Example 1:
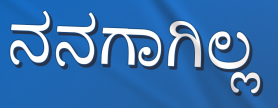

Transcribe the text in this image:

ನನಗಾಗಿಲ್ಲ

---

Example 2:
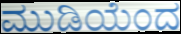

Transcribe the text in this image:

ಮುಡಿಯೆಂದ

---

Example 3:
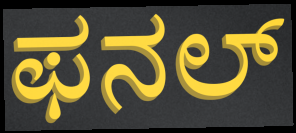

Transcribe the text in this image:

ಫನಲ್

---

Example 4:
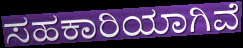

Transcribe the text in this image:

ಸಹಕಾರಿಯಾಗಿವೆ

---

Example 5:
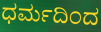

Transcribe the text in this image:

ಧರ್ಮದಿಂದ